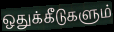
ஒதுக்கீடுகளும்